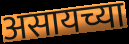
असायच्या